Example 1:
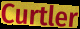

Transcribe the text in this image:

Curtler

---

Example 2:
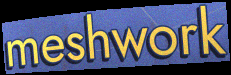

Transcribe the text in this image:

meshwork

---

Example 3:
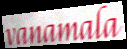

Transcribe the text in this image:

vanamala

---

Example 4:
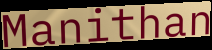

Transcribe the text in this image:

Manithan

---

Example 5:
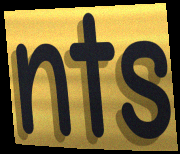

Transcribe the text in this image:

nts